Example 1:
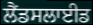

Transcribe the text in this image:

ਲੈਂਡਸਲਾਈਡ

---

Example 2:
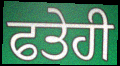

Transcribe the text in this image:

ਫਤੇਹੀ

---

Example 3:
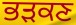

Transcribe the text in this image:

ਭੜਕਣ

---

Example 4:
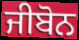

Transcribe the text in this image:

ਜੀਬੋਨ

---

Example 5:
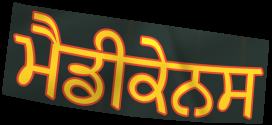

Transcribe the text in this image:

ਮੈਡੀਕੇਨਸ